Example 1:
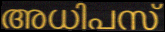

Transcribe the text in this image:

അധിപസ്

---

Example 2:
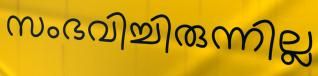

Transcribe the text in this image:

സംഭവിച്ചിരുന്നില്ല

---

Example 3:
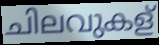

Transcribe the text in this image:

ചിലവുകള്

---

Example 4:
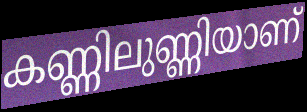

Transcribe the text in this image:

കണ്ണിലുണ്ണിയാണ്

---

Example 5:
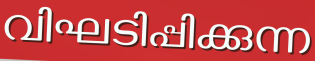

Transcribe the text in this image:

വിഘടിപ്പിക്കുന്ന